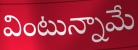
వింటున్నామే